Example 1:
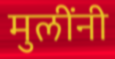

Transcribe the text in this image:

मुलींनी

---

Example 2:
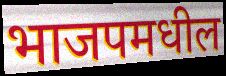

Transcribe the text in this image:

भाजपमधील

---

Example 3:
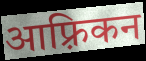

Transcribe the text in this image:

आफ़्रिकन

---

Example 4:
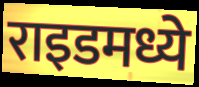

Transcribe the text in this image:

राइडमध्ये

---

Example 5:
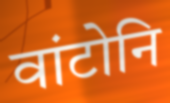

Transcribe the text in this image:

वांटोनि